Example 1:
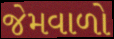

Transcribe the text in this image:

જેમવાળો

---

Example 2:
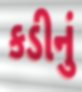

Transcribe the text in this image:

કડીનું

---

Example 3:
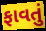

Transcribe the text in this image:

ફાવતું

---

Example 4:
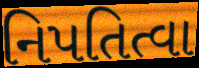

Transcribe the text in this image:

નિપતિત્વા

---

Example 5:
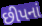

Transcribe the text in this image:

છીપનાં